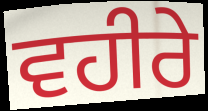
ਵਹੀਰੇ